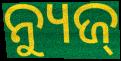
ନ୍ୟୁଜ୍